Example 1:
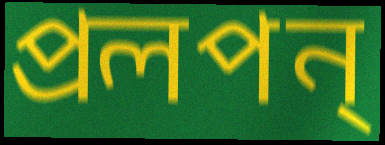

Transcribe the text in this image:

প্রলপন্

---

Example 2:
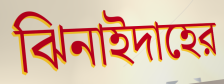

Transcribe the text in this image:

ঝিনাইদাহের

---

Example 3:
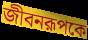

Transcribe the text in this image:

জীবনরূপকে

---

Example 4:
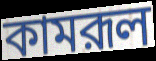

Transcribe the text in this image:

কামরূল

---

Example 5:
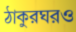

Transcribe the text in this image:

ঠাকুরঘরও